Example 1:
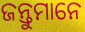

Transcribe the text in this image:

ଜନ୍ତୁମାନେ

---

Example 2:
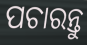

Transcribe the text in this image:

ପଚାରନ୍ତୁ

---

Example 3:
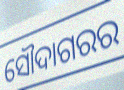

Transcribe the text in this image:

ସୌଦାଗରର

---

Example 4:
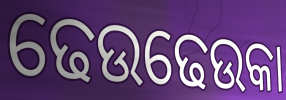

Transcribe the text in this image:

ଢେଉଢେଉକା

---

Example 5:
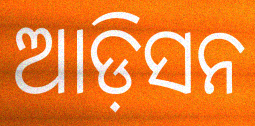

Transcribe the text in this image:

ଆଡ଼ିସନ